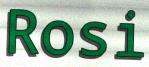
Rosi